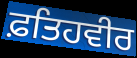
ਫ਼ਤਿਹਵੀਰ